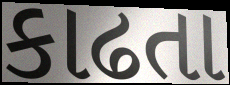
કાઢતા